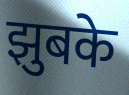
झुबके